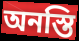
অনস্তি